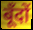
बूँदों